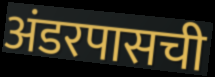
अंडरपासची